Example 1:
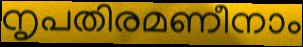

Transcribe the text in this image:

നൃപതിരമണീനാം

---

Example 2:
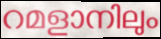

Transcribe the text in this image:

റമളാനിലും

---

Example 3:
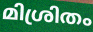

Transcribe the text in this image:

മിശ്രിതം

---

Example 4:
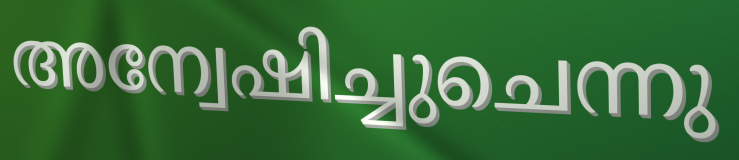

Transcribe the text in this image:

അന്വേഷിച്ചുചെന്നു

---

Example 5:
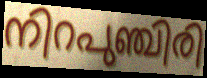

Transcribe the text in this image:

നിറപുഞ്ചിരി